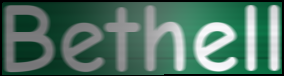
Bethell